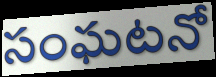
సంఘటనో